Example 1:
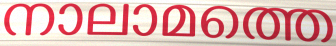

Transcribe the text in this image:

നാലാമത്തെ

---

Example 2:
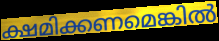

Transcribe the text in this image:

ക്ഷമിക്കണമെങ്കിൽ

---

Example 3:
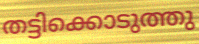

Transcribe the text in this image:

തട്ടിക്കൊടുത്തു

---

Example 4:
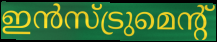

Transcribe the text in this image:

ഇൻസ്ട്രുമെന്റ്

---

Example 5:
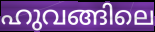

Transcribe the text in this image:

ഹുവങ്ങിലെ